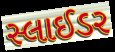
સ્લાઈડર